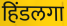
हिंडलगा